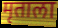
मृताला